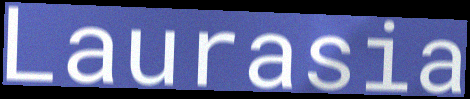
Laurasia